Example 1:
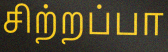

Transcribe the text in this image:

சிற்றப்பா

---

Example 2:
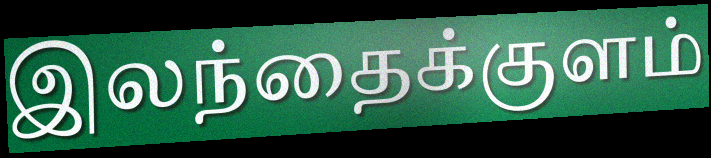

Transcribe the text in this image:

இலந்தைக்குளம்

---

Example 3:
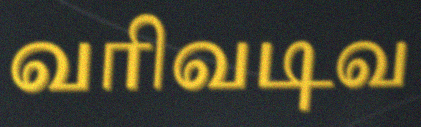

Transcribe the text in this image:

வரிவடிவ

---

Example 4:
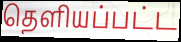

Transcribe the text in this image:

தெளியப்பட்ட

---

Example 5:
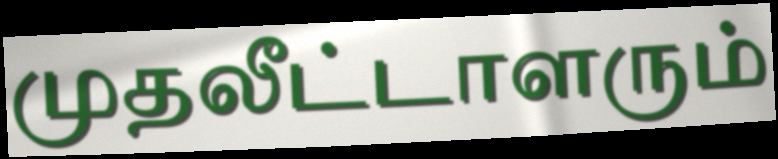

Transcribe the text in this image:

முதலீட்டாளரும்